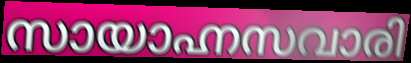
സായാഹ്നസവാരി